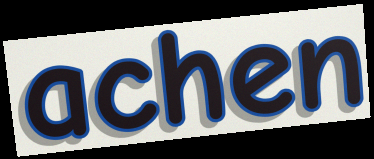
achen